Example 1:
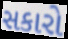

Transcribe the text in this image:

સકારો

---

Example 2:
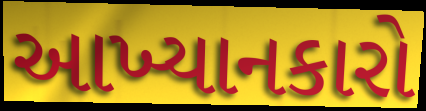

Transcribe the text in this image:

આખ્યાનકારો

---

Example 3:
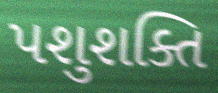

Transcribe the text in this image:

પશુશક્તિ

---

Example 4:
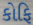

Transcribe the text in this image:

કોફિ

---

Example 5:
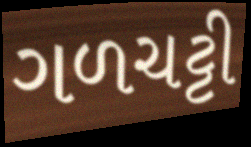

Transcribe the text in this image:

ગળચટ્ટી